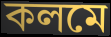
কলমে